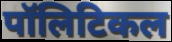
पॉलिटिकल